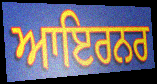
ਆਇਰਨਰ